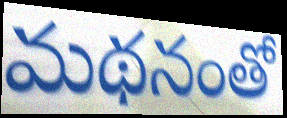
మథనంతో